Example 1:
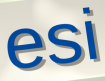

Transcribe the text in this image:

esi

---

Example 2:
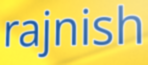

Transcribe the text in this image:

rajnish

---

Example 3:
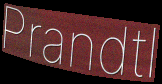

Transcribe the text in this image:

Prandtl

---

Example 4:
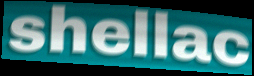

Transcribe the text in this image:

shellac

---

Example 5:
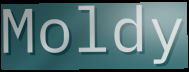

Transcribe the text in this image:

Moldy